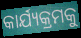
କାର୍ଯ୍ୟକ୍ରମକୁ